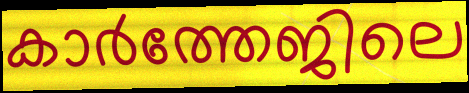
കാർത്തേജിലെ